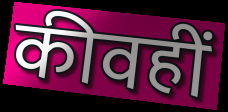
कीवहीं